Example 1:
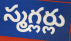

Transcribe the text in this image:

స్మగ్లర్లు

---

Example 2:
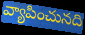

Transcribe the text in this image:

వ్యాపించునది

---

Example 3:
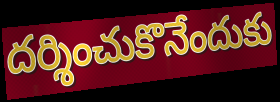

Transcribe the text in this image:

దర్శించుకొనేందుకు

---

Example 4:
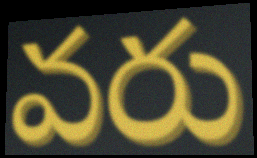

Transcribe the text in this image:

వరు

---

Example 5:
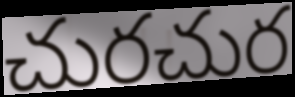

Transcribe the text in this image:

చురచుర